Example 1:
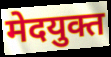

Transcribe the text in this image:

मेदयुक्त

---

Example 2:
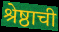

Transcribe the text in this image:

श्रेष्ठाची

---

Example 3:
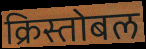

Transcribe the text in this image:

क्रिस्तोबल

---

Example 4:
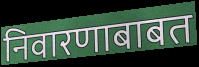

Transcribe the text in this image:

निवारणाबाबत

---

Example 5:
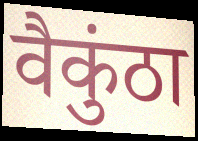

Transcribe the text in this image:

वैकुंठा